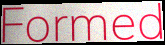
Formed